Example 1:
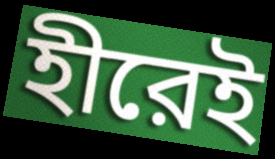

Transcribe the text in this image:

হীরেই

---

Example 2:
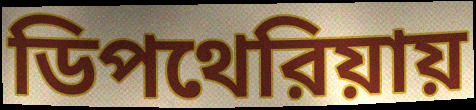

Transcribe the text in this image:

ডিপথেরিয়ায়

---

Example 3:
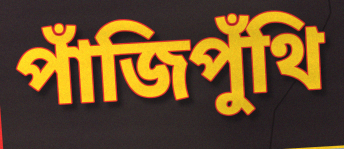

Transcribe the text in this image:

পাঁজিপুঁথি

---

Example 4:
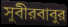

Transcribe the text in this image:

সুবীরবাবুর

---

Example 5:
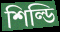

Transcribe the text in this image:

শিল্ডি